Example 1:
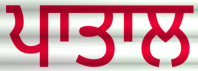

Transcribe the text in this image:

ਪਾਤਾਲ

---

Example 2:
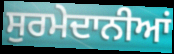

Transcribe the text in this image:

ਸੁਰਮੇਦਾਨੀਆਂ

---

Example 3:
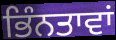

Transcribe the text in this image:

ਭਿੰਨਤਾਵਾਂ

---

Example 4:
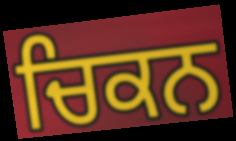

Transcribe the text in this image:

ਚਿਕਨ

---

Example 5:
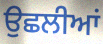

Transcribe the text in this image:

ਉਛਲੀਆਂ